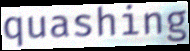
quashing